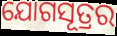
ଯୋଗସୂତ୍ରର